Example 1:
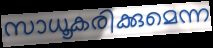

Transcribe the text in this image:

സാധൂകരിക്കുമെന്ന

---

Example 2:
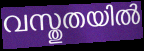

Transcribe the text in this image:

വസ്തുതയിൽ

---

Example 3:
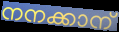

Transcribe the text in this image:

നനക്കാന്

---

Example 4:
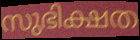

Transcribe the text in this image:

സുഭിക്ഷത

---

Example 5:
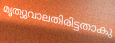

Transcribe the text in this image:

മൃത്യുവാലതിരിട്ടതാകു